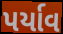
પર્યાવ